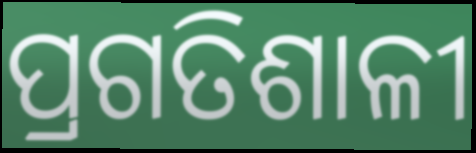
ପ୍ରଗତିଶାଳୀ